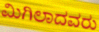
ಮಿಗಿಲಾದವರು